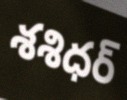
శశిధర్